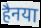
हैनया